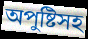
অপুষ্টিসহ